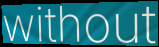
without